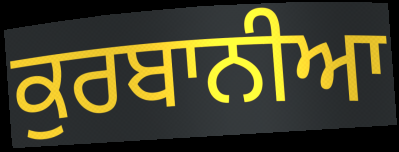
ਕੁਰਬਾਨੀਆ